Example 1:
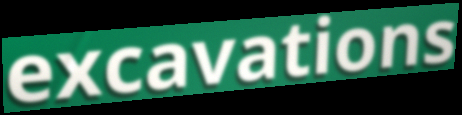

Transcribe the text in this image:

excavations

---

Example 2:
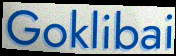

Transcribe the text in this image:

Goklibai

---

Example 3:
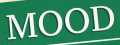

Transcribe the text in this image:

MOOD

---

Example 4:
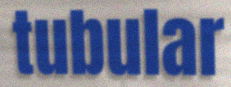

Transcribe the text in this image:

tubular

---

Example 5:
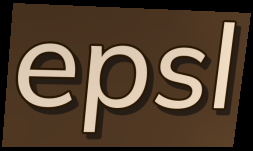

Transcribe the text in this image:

epsl